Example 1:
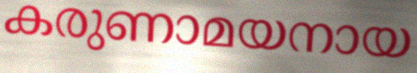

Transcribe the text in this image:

കരുണാമയനായ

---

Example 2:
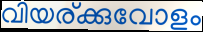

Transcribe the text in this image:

വിയര്ക്കുവോളം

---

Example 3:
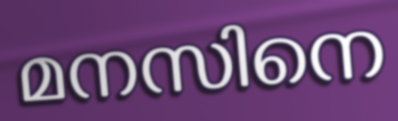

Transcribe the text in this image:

മനസിനെ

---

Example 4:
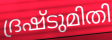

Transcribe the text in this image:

ദ്രഷ്ടുമിതി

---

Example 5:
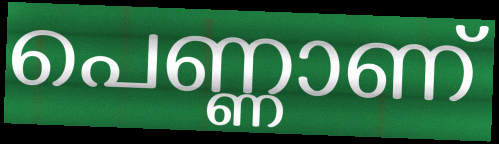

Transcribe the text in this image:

പെണ്ണാണ്